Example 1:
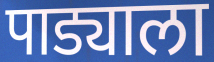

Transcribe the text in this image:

पाड्याला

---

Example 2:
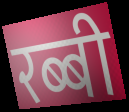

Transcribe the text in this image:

रब्बी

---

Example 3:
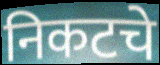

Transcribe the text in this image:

निकटचे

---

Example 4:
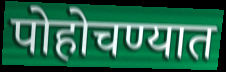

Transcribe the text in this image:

पोहोचण्यात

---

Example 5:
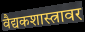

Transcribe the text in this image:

वैद्यकशास्त्रावर